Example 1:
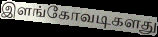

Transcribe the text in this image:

இளங்கோவடிகளது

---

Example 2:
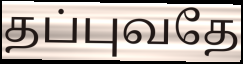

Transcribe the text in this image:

தப்புவதே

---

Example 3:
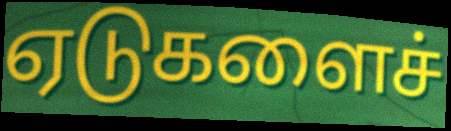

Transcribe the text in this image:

ஏடுகளைச்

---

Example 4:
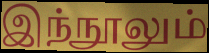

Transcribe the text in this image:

இந்நூலும்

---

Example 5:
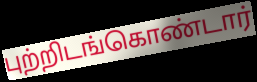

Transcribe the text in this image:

புற்றிடங்கொண்டார்